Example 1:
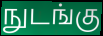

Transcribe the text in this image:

நுடங்கு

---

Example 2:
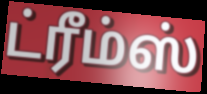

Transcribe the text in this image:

ட்ரீம்ஸ்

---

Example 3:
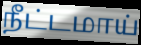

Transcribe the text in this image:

நீட்டமாய்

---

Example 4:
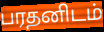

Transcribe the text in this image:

பரதனிடம்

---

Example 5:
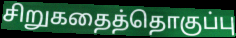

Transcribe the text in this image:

சிறுகதைத்தொகுப்பு